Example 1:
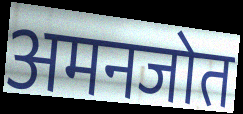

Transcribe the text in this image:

अमनजोत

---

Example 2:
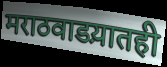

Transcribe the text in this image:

मराठवाडय़ातही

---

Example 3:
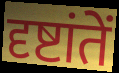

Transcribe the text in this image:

दृष्टांतें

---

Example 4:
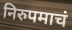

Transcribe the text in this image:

निरुपमाचं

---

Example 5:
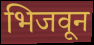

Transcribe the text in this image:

भिजवून